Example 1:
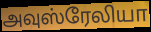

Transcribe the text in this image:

அவுஸ்ரேலியா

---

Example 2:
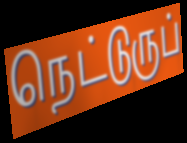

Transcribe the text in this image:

நெட்டுருப்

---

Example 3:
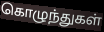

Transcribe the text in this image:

கொழுந்துகள்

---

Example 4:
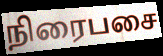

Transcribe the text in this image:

நிரைபசை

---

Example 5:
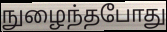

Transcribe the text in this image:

நுழைந்தபோது